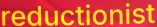
reductionist